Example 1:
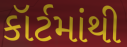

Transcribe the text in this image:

કૉર્ટમાંથી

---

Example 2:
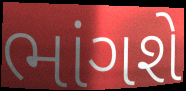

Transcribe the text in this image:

ભાંગશે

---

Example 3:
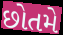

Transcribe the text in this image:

છોતમે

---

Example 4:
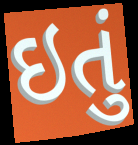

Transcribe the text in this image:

ઇતું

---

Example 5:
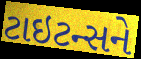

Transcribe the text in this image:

ટાઇટન્સને